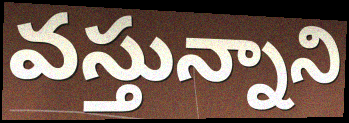
వస్తున్నాని